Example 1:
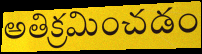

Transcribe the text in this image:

అతిక్రమించడం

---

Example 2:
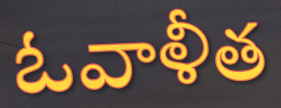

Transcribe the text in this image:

ఓవాళీత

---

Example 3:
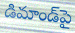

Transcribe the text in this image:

డిమాండ్‌పై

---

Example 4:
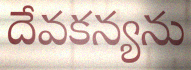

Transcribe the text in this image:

దేవకన్యను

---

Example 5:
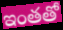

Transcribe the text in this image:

ఇంతతో